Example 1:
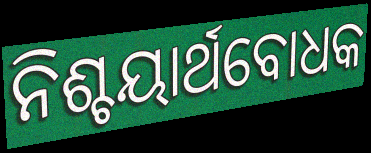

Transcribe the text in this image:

ନିଶ୍ଚୟାର୍ଥବୋଧକ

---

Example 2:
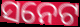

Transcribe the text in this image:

ସନେଟ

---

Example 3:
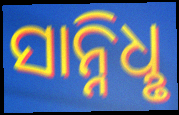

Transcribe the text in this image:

ସାନ୍ନିଧୢ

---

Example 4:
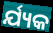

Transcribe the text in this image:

ର୍ଯ୍ୟକ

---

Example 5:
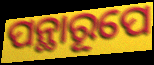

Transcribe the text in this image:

ପନ୍ଥାରୂପେ